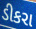
ડીકરા